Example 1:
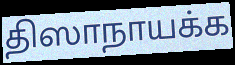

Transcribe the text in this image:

திஸாநாயக்க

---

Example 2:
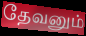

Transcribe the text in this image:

தேவனும்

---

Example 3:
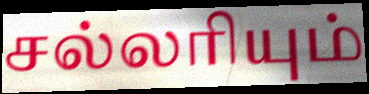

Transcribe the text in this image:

சல்லரியும்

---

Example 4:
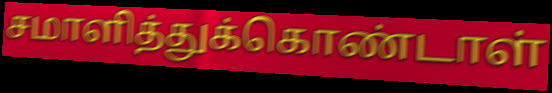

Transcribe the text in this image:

சமாளித்துக்கொண்டாள்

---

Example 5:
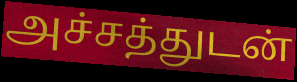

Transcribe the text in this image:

அச்சத்துடன்